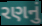
રણનું